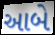
આબે